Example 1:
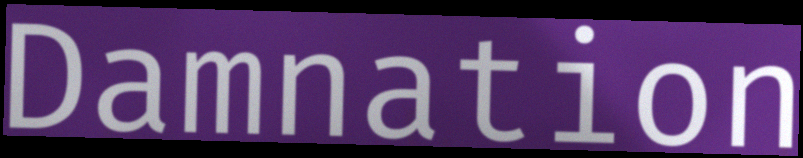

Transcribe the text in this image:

Damnation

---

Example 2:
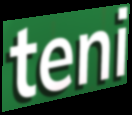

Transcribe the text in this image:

teni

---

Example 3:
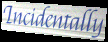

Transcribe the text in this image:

Incidentally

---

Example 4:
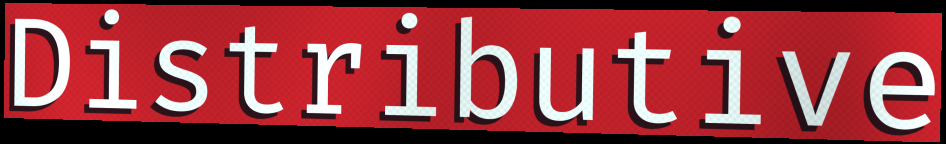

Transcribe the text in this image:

Distributive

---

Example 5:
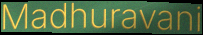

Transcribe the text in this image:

Madhuravani